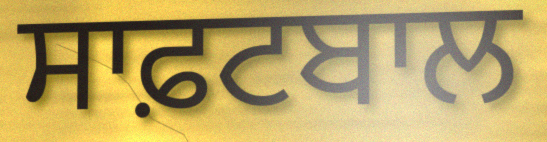
ਸਾਫ਼ਟਬਾਲ